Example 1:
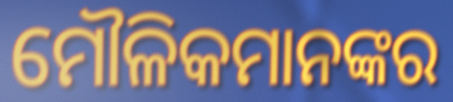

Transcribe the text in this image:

ମୌଳିକମାନଙ୍କର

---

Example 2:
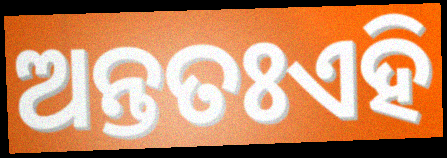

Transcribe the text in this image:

ଅନ୍ତତଃଏହି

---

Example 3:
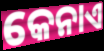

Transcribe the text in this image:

କେନାଏ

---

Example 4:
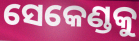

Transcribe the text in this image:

ସେକେଣ୍ଡକୁ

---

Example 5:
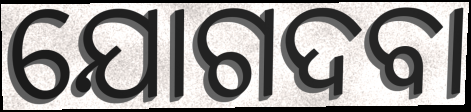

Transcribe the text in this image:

ଯୋଗଦବା